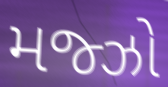
મજ્ઝો